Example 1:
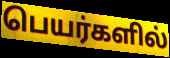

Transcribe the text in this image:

பெயர்களில்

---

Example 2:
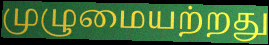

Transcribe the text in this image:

முழுமையற்றது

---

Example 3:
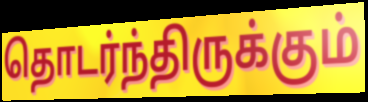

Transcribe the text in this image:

தொடர்ந்திருக்கும்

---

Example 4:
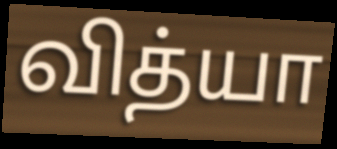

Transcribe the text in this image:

வித்யா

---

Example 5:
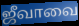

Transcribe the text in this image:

ஜீவாவை